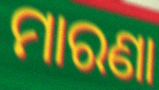
ମାରଣା